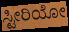
ಸ್ಟೀರಿಯೋ